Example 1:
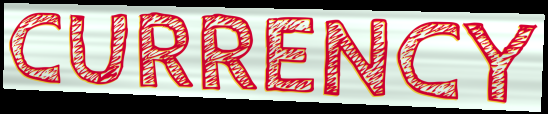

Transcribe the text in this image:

CURRENCY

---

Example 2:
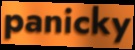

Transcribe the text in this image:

panicky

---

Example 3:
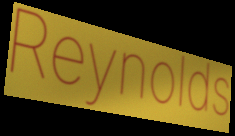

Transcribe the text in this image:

Reynolds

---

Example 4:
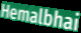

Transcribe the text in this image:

Hemalbhai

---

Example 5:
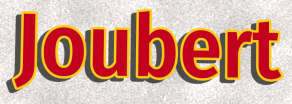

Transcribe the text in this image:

Joubert